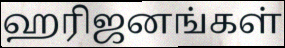
ஹரிஜனங்கள்